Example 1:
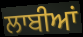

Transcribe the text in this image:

ਲਾਬੀਆਂ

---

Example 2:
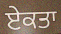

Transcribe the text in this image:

ਏਕਤਾ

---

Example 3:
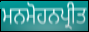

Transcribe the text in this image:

ਮਨਮੋਹਨਪ੍ਰੀਤ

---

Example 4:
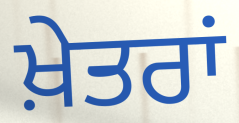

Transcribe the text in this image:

ਖ਼ੇਤਰਾਂ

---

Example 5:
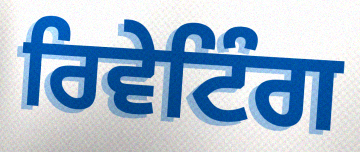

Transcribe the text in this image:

ਰਿਵੇਟਿੰਗ